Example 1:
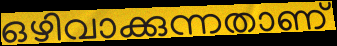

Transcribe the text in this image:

ഒഴിവാക്കുന്നതാണ്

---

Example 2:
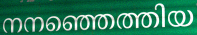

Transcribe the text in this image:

നനഞ്ഞെത്തിയ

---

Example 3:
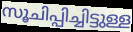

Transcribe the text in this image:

സൂചിപ്പിച്ചിട്ടുള്ള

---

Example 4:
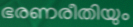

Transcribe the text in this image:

ഭരണരീതിയും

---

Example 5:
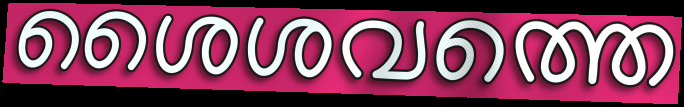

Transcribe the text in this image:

ശൈശവത്തെ